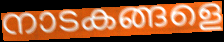
നാടകങ്ങളെ